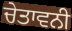
ਚੇਤਾਵਨੀ